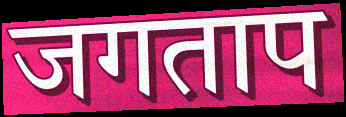
जगताप